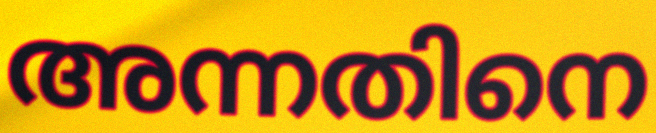
അന്നതിനെ